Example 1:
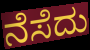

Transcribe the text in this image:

ನೆಸೆದು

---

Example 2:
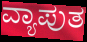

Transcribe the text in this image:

ವ್ಯಾಪುತ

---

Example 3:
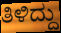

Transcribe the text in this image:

ತಿಳಿದ್ದು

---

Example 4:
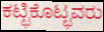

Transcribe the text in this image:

ಕಟ್ಟಿಕೊಟ್ಟವರು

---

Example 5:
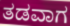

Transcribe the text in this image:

ತಡವಾಗ